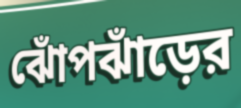
ঝোঁপঝাঁড়ের